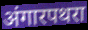
अंगारपथरा